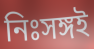
নিঃসঙ্গই